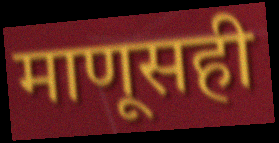
माणूसही